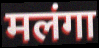
मलंगा